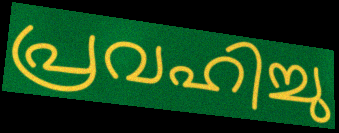
പ്രവഹിച്ചു